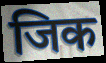
जिक